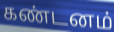
கண்டனம்